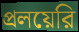
প্রলয়েরি